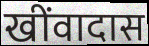
खींवादास